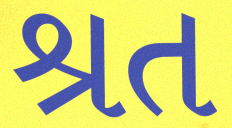
શ્રત